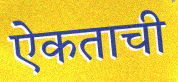
ऐकताची